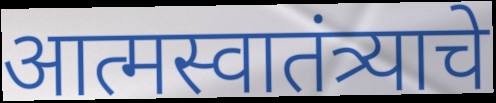
आत्मस्वातंत्र्याचे